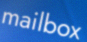
mailbox